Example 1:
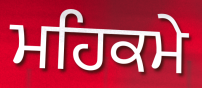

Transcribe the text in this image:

ਮਹਿਕਮੇ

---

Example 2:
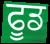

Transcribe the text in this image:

ਫੂਡ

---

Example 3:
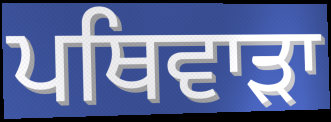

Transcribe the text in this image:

ਪਥਿਵਾੜਾ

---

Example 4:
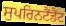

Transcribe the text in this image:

ਸੁਪਰਿਨਟੈਂਡੈਂਟ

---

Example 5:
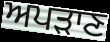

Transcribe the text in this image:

ਅਪੜਾਣ